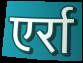
एर्रा